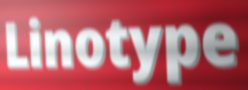
Linotype